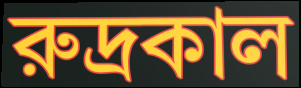
রুদ্রকাল